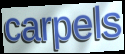
carpels